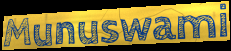
Munuswami